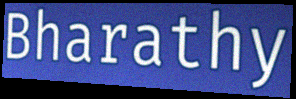
Bharathy